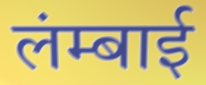
लंम्बाई